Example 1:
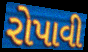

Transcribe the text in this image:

રોપાવી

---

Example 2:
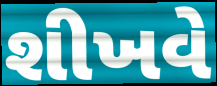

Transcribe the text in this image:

શીખવે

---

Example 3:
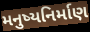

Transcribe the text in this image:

મનુષ્યનિર્માણ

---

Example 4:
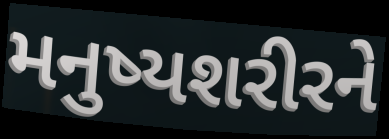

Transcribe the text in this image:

મનુષ્યશરીરને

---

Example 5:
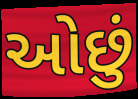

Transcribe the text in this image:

ઓછું